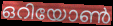
ഒറിയോൺ